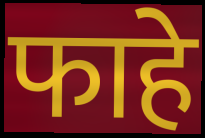
फाहे